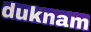
duknam